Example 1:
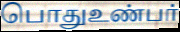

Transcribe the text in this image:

பொதுஉண்பர்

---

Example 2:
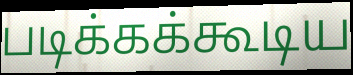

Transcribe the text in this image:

படிக்கக்கூடிய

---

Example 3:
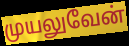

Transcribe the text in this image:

முயலுவேன்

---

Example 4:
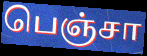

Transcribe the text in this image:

பெஞ்சா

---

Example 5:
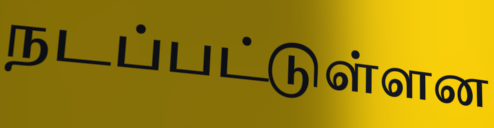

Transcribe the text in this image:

நடப்பட்டுள்ளன